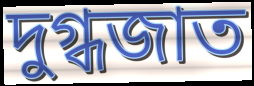
দুগ্ধজাত